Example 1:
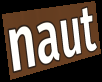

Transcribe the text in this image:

naut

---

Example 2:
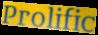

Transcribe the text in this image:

Prolific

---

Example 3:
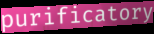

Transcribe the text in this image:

purificatory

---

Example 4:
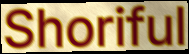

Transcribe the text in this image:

Shoriful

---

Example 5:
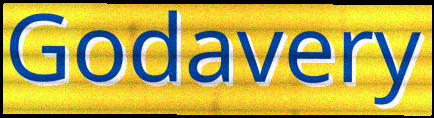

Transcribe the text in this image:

Godavery